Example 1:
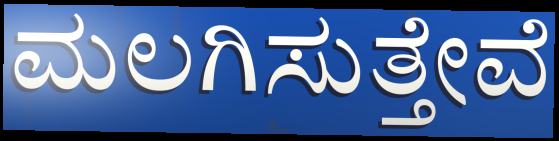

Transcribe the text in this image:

ಮಲಗಿಸುತ್ತೇವೆ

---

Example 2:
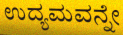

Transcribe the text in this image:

ಉದ್ಯಮವನ್ನೇ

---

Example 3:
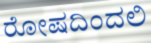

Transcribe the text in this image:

ರೋಷದಿಂದಲಿ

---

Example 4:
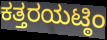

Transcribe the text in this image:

ಕತ್ತರಯಟ್ಠಿಂ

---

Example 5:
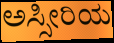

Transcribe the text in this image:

ಅಸ್ಸೀರಿಯ